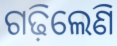
ଗଢ଼ିଲେଣି